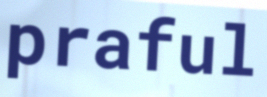
praful